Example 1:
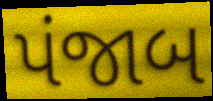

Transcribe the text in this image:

પંજાબ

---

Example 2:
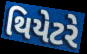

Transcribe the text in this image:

થિયેટરે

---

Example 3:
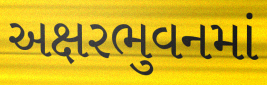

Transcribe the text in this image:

અક્ષરભુવનમાં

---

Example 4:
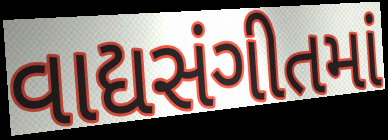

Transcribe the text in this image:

વાદ્યસંગીતમાં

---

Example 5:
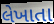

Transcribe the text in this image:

લેખાતા